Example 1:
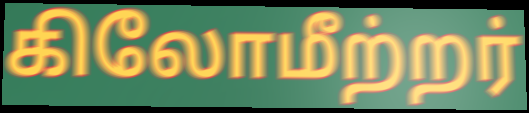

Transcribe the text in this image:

கிலோமீற்றர்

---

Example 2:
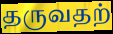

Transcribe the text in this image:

தருவதற்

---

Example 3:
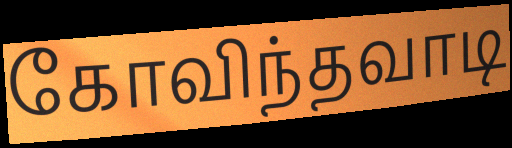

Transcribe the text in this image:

கோவிந்தவாடி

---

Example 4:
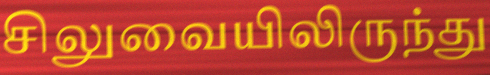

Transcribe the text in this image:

சிலுவையிலிருந்து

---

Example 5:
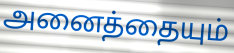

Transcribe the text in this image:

அனைத்தையும்